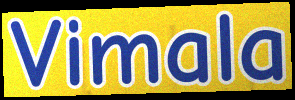
Vimala